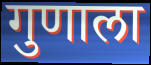
गुणाला